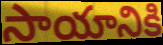
సాయానికి